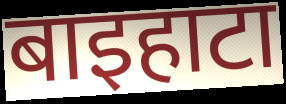
बाइहाटा